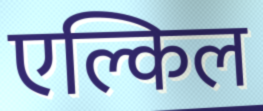
एल्किल